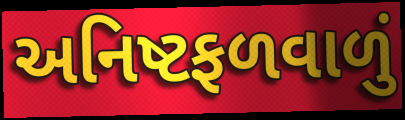
અનિષ્ટફળવાળું